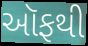
ઑફથી